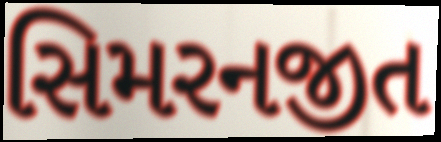
સિમરનજીત